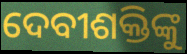
ଦେବୀଶକ୍ତିଙ୍କୁ